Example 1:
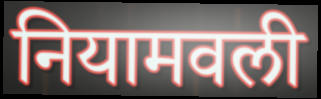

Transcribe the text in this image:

नियामवली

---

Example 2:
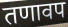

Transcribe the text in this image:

तणावप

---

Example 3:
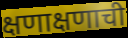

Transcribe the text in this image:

क्षणाक्षणाची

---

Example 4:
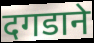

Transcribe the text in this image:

दगडाने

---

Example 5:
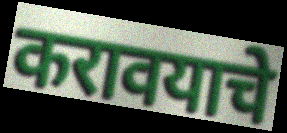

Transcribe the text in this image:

करावयाचे